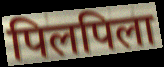
पिलपिला